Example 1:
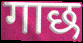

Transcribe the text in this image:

गाछ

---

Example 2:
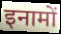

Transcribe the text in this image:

इनामों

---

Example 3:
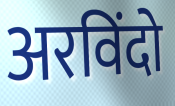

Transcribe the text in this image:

अरविंदो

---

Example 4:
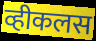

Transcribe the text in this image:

व्हीकलस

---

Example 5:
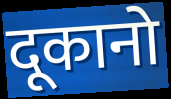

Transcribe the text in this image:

दूकानो